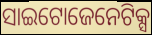
ସାଇଟୋଜେନେଟିକ୍ସ